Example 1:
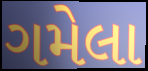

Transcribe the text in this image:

ગમેલા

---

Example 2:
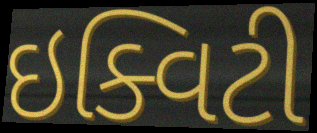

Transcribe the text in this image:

ઇક્વિટી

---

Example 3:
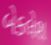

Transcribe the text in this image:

બેકલેશ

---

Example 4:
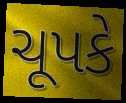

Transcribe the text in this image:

ચૂપકે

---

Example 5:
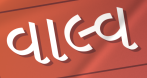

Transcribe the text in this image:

વાલ્વ